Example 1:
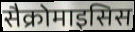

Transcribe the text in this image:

सैक्रोमाइसिस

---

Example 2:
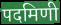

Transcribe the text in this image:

पदमिणी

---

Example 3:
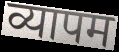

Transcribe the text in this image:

व्यापम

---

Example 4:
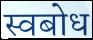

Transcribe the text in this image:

स्वबोध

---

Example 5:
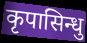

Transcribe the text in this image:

कृपासिन्धु